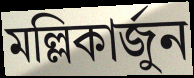
মল্লিকার্জুন